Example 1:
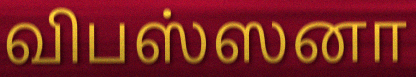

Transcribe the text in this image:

விபஸ்ஸனா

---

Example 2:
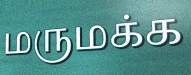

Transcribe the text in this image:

மருமக்க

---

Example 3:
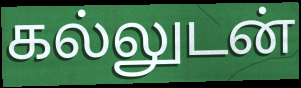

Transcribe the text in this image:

கல்லுடன்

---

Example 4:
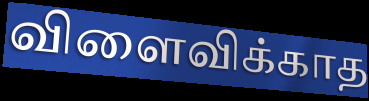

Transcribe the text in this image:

விளைவிக்காத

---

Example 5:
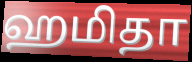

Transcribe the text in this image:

ஹமிதா